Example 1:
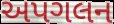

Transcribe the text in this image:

અપગલન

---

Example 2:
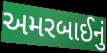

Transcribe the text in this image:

અમરબાઈનું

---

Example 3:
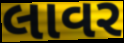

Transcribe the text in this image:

લાવર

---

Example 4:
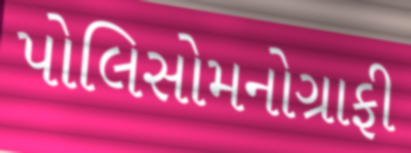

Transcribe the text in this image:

પોલિસોમનોગ્રાફી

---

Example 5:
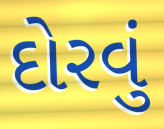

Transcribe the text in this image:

દોરવું